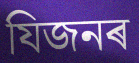
যিজনৰ